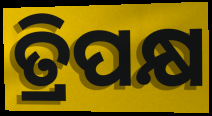
ତ୍ରିପକ୍ଷ